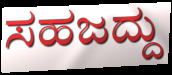
ಸಹಜದ್ದು